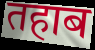
तहाब